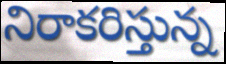
నిరాకరిస్తున్న